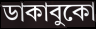
ডাকাবুকো